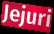
Jejuri